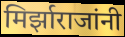
मिर्झाराजांनी